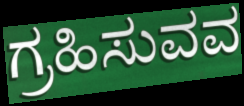
ಗ್ರಹಿಸುವವ